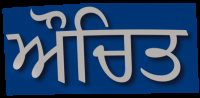
ਔਚਿਤ